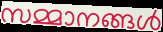
സമ്മാനങ്ങൾ